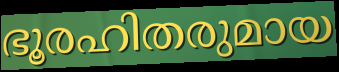
ഭൂരഹിതരുമായ